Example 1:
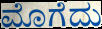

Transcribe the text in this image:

ಮೊಗೆದು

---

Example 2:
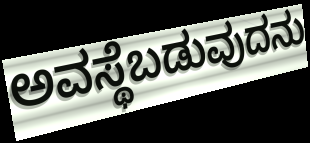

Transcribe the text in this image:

ಅವಸ್ಥೆಬಡುವುದನು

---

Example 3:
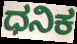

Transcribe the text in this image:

ಧನಿಕ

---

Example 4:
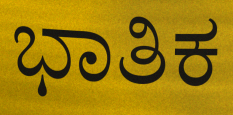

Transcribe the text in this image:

ಭಾತಿಕ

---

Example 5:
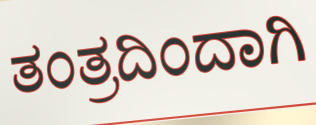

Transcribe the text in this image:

ತಂತ್ರದಿಂದಾಗಿ